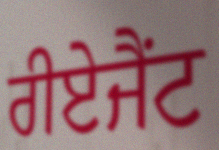
ਰੀਏਜੈਂਟ